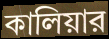
কালিয়ার